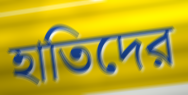
হাতিদের